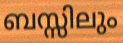
ബസ്സിലും